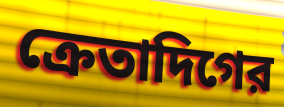
ক্রেতাদিগের